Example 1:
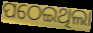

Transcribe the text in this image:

ପଠେଇଥିଲା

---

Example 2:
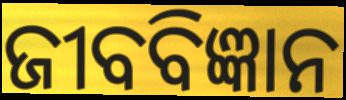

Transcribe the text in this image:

ଜୀବବିଜ୍ଞାନ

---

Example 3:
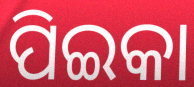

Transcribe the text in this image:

ପିଇକା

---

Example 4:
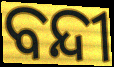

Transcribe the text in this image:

ବନ୍ଦୀ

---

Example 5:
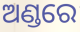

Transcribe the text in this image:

ଅଣ୍ଡରେ